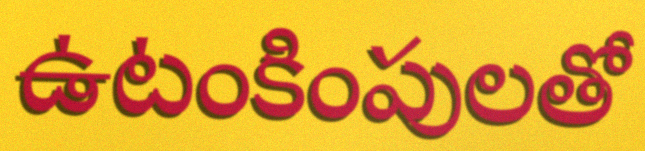
ఉటంకింపులతో